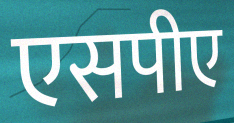
एसपीए